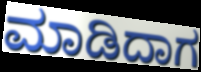
ಮಾಡಿದಾಗ